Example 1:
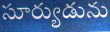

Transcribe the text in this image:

సూర్యుడును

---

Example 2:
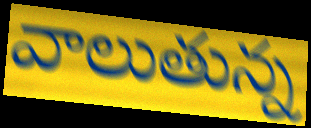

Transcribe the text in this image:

వాలుతున్న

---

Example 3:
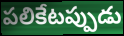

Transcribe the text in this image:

పలికేటప్పుడు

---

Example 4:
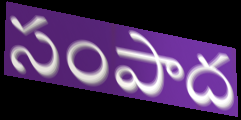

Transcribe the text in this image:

సంపాద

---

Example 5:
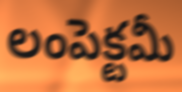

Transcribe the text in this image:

లంపెక్టమీ